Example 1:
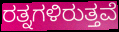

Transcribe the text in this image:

ರತ್ನಗಳಿರುತ್ತವೆ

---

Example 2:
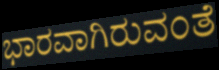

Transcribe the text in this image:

ಭಾರವಾಗಿರುವಂತೆ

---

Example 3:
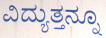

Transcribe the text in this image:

ವಿದ್ಯುತ್ತನ್ನೂ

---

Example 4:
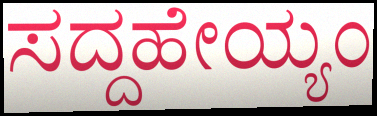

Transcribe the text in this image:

ಸದ್ದಹೇಯ್ಯಂ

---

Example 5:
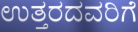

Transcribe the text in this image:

ಉತ್ತರದವರಿಗೆ